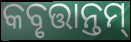
କବୃତ୍ତାନ୍ତମ୍